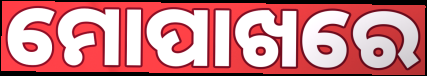
ମୋପାଖରେ